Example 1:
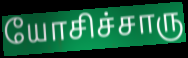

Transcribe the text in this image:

யோசிச்சாரு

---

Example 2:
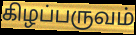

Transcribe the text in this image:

கிழப்பருவம்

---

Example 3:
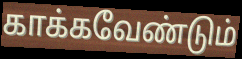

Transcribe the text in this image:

காக்கவேண்டும்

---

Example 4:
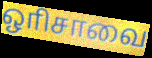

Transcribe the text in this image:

ஒரிசாவை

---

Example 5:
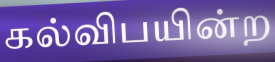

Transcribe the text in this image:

கல்விபயின்ற